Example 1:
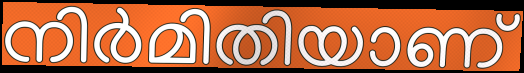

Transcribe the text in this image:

നിർമിതിയാണ്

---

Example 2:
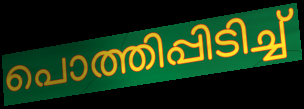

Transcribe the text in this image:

പൊത്തിപ്പിടിച്ച്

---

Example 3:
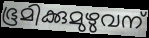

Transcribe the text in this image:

ഭൂമിക്കുമുഴുവന്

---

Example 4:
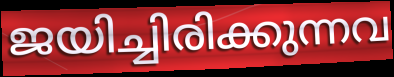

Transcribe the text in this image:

ജയിച്ചിരിക്കുന്നവ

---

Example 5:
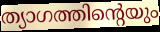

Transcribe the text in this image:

ത്യാഗത്തിന്റെയും